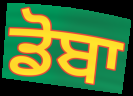
ਡੋਬਾ